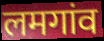
लमगांव